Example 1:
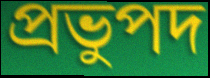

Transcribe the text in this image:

প্রভুপদ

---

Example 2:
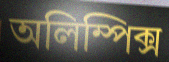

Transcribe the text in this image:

অলিম্পিক্স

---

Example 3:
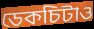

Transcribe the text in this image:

ডেকচিটাও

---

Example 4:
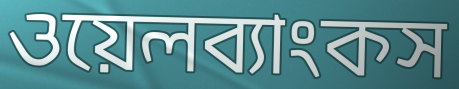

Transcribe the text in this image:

ওয়েলব্যাংকস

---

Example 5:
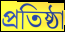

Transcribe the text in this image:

প্রতিষ্ঠা